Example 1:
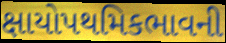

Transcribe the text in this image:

ક્ષાયોપથમિકભાવની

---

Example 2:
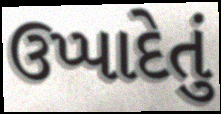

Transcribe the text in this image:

ઉપ્પાદેતું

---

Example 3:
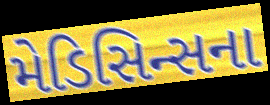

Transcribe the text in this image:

મેડિસિન્સના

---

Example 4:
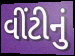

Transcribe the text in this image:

વીંટીનું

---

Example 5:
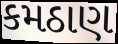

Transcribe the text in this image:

કમઠાણ